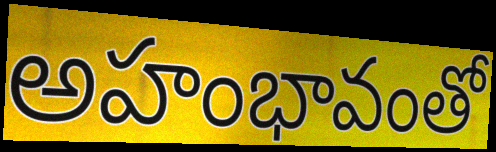
అహంభావంతో